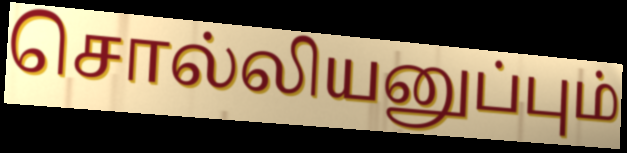
சொல்லியனுப்பும்